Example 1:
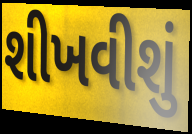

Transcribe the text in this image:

શીખવીશું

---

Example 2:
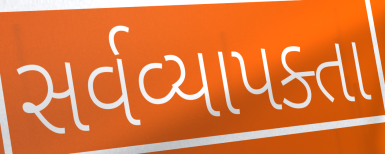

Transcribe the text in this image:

સર્વવ્યાપક્તા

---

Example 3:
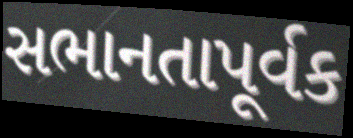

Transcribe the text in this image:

સભાનતાપૂર્વક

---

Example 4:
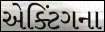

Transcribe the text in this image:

એક્ટિંગના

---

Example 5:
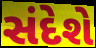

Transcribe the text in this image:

સંદેશે